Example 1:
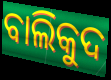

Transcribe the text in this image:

ବାଲିକୁଦ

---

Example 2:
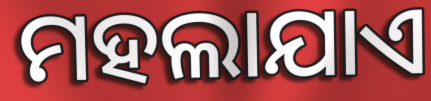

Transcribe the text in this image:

ମହଲାଯାଏ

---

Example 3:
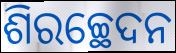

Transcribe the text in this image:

ଶିରଚ୍ଛେଦନ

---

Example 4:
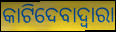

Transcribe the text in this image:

କାଟିଦେବାଦ୍ଵାରା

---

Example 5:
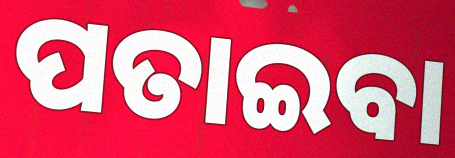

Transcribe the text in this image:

ପତାଇବା